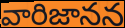
వారిజానన